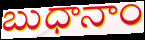
బుధానాం